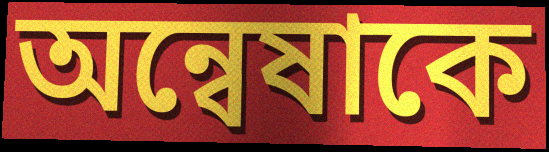
অন্বেষাকে